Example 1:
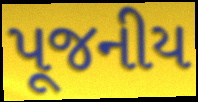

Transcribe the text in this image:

પૂજનીય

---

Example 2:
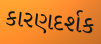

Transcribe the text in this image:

કારણદર્શક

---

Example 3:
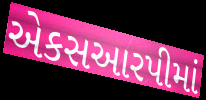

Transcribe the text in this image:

એકસઆરપીમાં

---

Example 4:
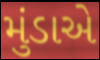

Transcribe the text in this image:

મુંડાએ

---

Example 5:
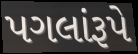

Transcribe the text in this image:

પગલાંરૂપે